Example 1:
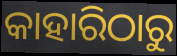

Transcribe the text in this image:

କାହାରିଠାରୁ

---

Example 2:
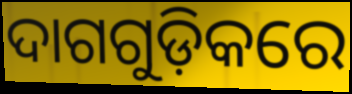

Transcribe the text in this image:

ଦାଗଗୁଡ଼ିକରେ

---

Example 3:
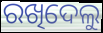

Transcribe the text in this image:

ରଖିଦେଲୁ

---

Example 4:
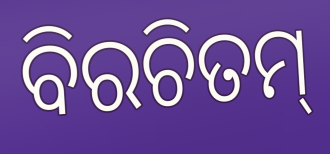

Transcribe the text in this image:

ବିରଚିତମ୍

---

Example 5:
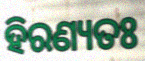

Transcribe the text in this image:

ହିରଣ୍ୟତଃ